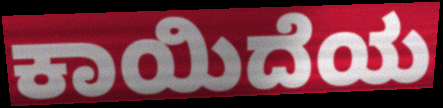
ಕಾಯಿದೆಯ